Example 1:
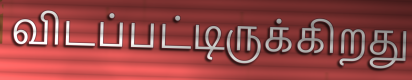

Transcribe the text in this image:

விடப்பட்டிருக்கிறது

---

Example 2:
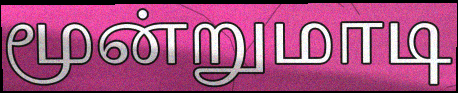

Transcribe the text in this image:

மூன்றுமாடி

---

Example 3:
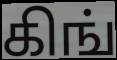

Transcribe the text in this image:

கிங்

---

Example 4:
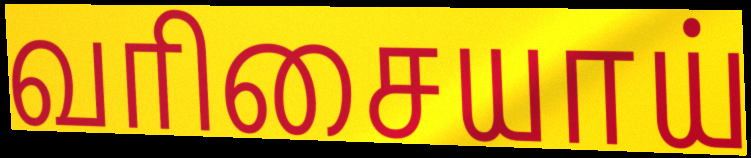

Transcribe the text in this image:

வரிசையாய்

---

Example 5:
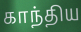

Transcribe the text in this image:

காந்திய